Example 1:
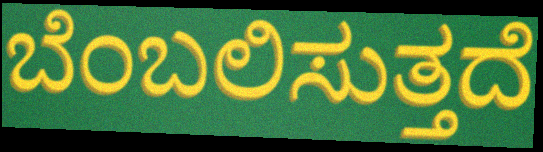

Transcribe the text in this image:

ಬೆಂಬಲಿಸುತ್ತದೆ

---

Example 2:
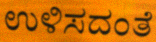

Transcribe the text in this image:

ಉಳಿಸದಂತೆ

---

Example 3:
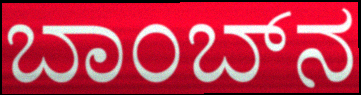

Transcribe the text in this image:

ಬಾಂಬ್‍ನ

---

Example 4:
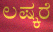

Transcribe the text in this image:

ಲಷ್ಕರೆ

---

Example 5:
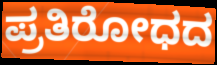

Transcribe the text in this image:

ಪ್ರತಿರೋಧದ